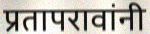
प्रतापरावांनी